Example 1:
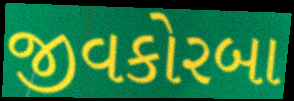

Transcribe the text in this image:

જીવકોરબા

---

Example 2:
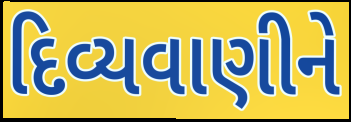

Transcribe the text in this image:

દિવ્યવાણીને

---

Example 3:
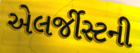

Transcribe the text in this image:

એલર્જીસ્ટની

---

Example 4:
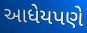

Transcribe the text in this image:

આધેયપણે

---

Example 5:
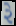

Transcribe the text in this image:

રે